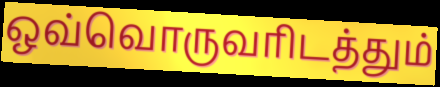
ஒவ்வொருவரிடத்தும்